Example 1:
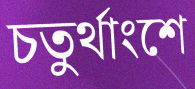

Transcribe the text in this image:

চতুর্থাংশে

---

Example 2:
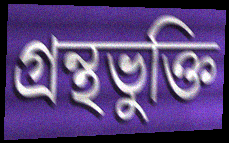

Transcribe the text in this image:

গ্রন্থভুক্তি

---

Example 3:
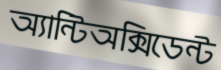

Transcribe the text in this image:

অ্যান্টিঅক্সিডেন্ট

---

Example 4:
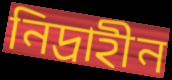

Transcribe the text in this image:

নিদ্রাহীন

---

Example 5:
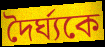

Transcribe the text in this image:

দৈর্ঘ্যকে